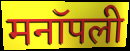
मनॉपली